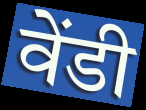
वेंडी